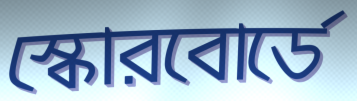
স্কোরবোর্ডে